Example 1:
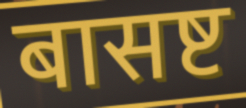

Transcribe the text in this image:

बासष्ट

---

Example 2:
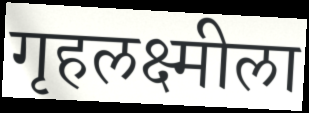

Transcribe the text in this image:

गृहलक्ष्मीला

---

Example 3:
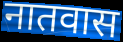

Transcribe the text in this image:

नातवास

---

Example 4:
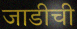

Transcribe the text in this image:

जाडीची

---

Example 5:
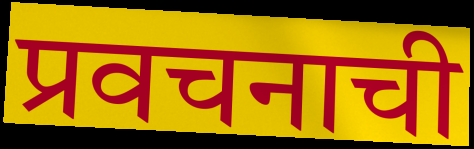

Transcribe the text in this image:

प्रवचनाची